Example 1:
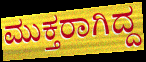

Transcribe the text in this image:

ಮುಕ್ತರಾಗಿದ್ದ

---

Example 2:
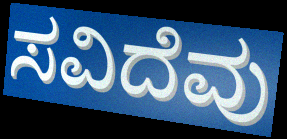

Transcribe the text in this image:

ಸವಿದೆವು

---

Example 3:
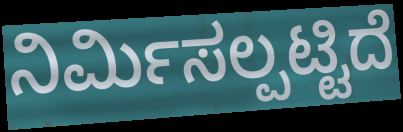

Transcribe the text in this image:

ನಿರ್ಮಿಸಲ್ಪಟ್ಟಿದೆ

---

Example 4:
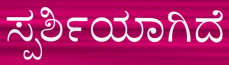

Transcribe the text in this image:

ಸ್ಪರ್ಶಿಯಾಗಿದೆ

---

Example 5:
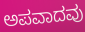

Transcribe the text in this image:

ಅಪವಾದವು